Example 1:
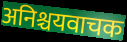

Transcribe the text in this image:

अनिश्चयवाचक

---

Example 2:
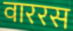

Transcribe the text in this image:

वाररस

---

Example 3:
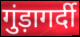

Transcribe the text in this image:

गुंड़ागर्दी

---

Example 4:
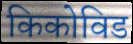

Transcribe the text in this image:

किकोविड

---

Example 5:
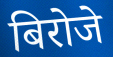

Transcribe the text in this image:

बिरोजे